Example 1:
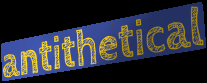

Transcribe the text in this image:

antithetical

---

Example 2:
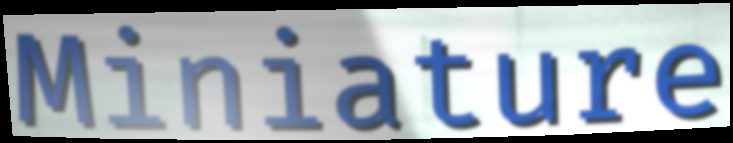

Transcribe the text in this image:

Miniature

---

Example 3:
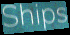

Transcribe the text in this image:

Ships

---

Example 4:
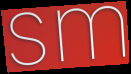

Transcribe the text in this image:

sm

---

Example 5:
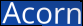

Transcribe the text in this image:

Acorn